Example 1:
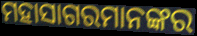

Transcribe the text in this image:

ମହାସାଗରମାନଙ୍କର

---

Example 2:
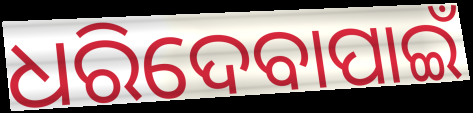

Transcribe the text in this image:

ଧରିଦେବାପାଇଁ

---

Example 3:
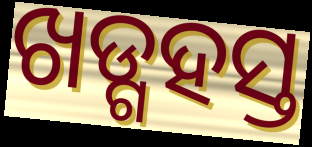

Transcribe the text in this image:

ଖଡ୍ଗହସ୍ତ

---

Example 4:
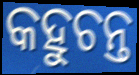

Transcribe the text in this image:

କହୁଚନ୍ତ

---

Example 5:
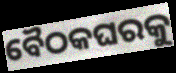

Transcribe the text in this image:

ବୈଠକଘରକୁ